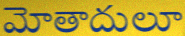
మోతాదులూ